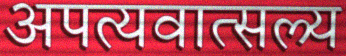
अपत्यवात्सल्य